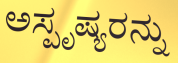
ಅಸ್ಪೃಷ್ಯರನ್ನು